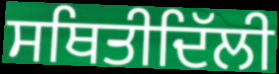
ਸਥਿਤੀਦਿੱਲੀ